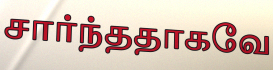
சார்ந்ததாகவே